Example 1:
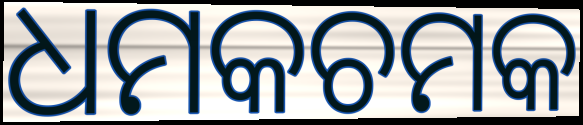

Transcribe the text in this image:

ଧମକଚମକ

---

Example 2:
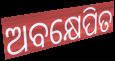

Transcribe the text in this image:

ଅବକ୍ଷେପିତ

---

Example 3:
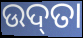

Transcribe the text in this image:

ଉଦ୍‌ତା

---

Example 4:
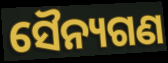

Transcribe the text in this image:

ସୈନ୍ୟଗଣ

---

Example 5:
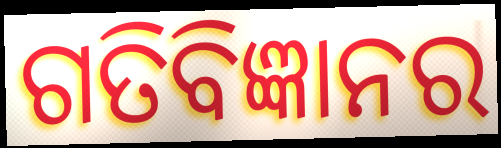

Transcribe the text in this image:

ଗତିବିଜ୍ଞାନର